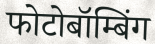
फोटोबॉम्बिंग